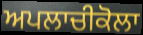
ਅਪਲਾਚੀਕੋਲਾ